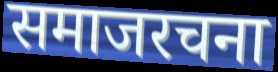
समाजरचना